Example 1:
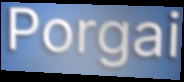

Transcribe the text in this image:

Porgai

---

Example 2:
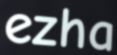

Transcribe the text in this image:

ezha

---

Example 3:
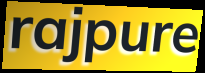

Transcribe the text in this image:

rajpure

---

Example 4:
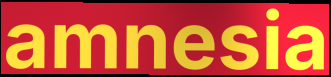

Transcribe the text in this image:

amnesia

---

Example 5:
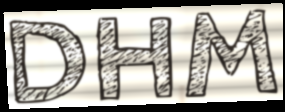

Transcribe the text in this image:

DHM